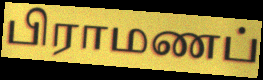
பிராமணப்